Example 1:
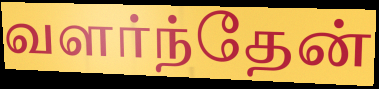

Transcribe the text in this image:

வளர்ந்தேன்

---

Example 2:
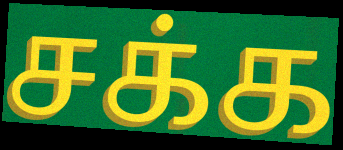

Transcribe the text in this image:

சக்க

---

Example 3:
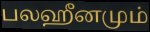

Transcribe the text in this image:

பலஹீனமும்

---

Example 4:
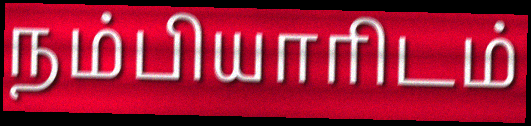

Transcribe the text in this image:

நம்பியாரிடம்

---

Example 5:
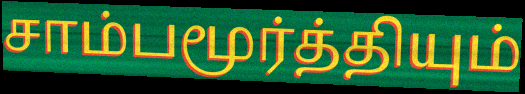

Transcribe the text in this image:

சாம்பமூர்த்தியும்